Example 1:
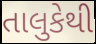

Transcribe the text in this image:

તાલુકેથી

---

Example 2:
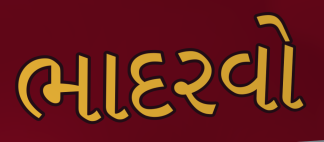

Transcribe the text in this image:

ભાદરવો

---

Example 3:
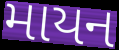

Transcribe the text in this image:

માયન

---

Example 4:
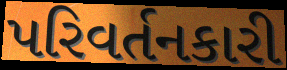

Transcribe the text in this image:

પરિવર્તનકારી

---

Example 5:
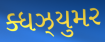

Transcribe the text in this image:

ક્ધઝ્યુમર